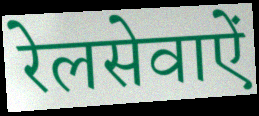
रेलसेवाऐं